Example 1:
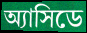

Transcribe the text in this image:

অ্যাসিডে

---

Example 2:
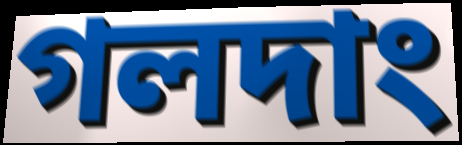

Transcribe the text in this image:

গলদাং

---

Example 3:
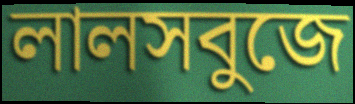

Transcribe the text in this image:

লালসবুজে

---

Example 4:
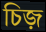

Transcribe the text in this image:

চিজ়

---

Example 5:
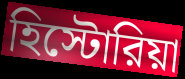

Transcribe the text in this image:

হিস্টোরিয়া